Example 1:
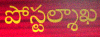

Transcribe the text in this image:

పోస్టల్శాఖ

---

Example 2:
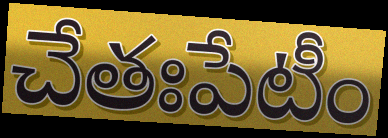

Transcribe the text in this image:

చేతఃపేటీం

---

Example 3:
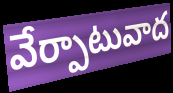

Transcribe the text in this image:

వేర్పాటువాద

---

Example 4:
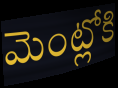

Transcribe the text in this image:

మెంట్లోకి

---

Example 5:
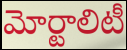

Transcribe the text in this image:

మోర్టాలిటీ